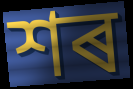
শৰ